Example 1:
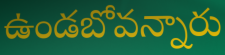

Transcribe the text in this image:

ఉండబోవన్నారు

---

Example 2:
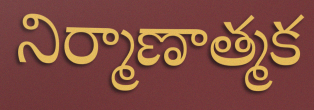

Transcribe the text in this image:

నిర్మాణాత్మక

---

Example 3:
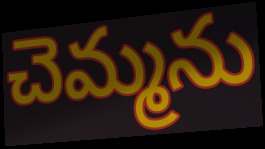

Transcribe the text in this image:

చెమ్మను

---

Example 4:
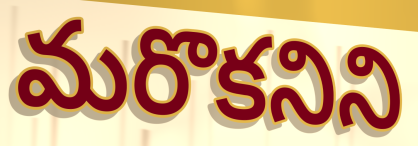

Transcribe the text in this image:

మరొకనిని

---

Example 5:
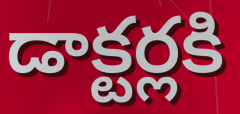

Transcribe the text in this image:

డాక్టర్లకి